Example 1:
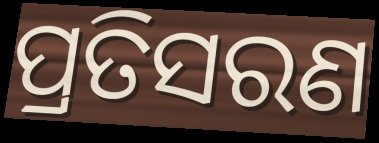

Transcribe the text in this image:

ପ୍ରତିସରଣ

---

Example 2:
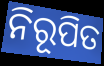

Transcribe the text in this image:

ନିରୂପିତ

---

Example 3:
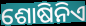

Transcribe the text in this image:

ଶୋଷିନିଏ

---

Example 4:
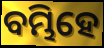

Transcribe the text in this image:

ବମ୍ଭିହେ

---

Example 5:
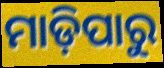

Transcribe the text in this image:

ମାଡ଼ିପାରୁ